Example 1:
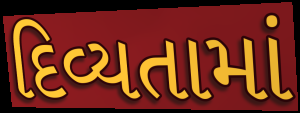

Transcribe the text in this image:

દિવ્યતામાં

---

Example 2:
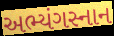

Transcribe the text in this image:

અભ્યંગસ્નાન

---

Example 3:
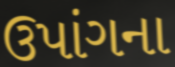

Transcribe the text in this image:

ઉપાંગના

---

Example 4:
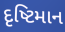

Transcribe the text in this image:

દૃષ્ટિમાન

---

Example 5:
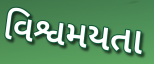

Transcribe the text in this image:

વિશ્વમયતા